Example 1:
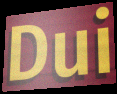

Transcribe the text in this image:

Dui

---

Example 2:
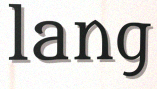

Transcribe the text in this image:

lang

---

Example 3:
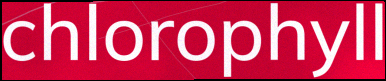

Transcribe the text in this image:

chlorophyll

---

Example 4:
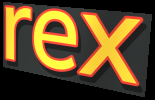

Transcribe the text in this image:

rex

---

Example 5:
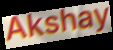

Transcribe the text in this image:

Akshay